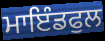
ਮਾਇੰਡਫੁਲ